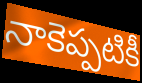
నాకెప్పటికీ